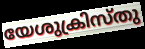
യേശുക്രിസ്തു